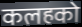
कलहको